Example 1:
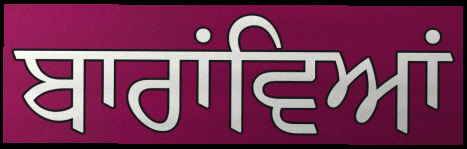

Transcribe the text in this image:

ਬਾਰਾਂਵਿਆਂ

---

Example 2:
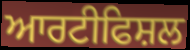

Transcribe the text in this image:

ਆਰਟੀਫਿਸ਼ਲ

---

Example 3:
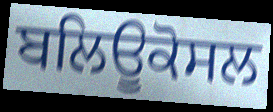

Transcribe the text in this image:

ਬਲਿਊਕੋਸਲ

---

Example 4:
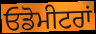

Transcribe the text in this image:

ਓਡੋਮੀਟਰਾਂ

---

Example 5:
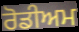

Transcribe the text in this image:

ਰੋਡੀਅਮ